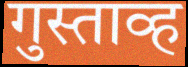
गुस्ताव्ह